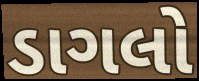
ડાગલો